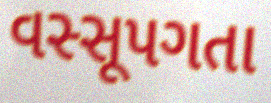
વસ્સૂપગતા